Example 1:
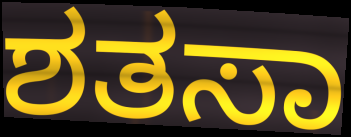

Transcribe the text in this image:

ಶತಸಾ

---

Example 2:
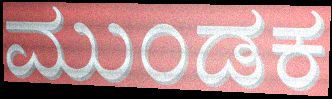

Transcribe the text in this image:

ಮುಂಡಕ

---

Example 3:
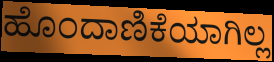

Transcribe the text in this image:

ಹೊಂದಾಣಿಕೆಯಾಗಿಲ್ಲ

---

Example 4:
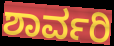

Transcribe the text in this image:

ಶಾರ್ವರಿ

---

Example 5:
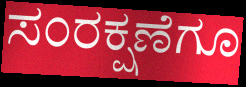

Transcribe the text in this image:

ಸಂರಕ್ಷಣೆಗೂ